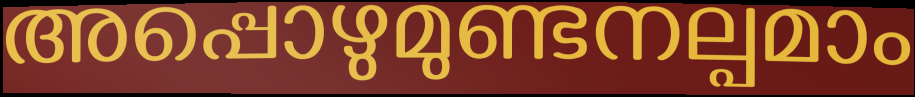
അപ്പൊഴുമുണ്ടനല്പമാം